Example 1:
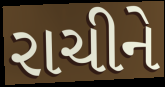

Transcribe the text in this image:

રાચીને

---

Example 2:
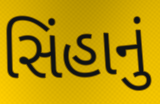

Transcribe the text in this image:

સિંહાનું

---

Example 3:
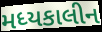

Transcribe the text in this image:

મધ્યકાલીન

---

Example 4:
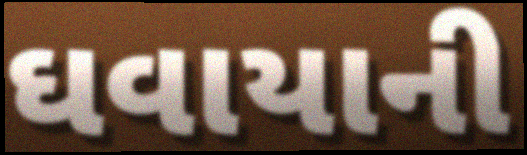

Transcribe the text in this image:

ઘવાયાની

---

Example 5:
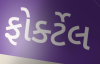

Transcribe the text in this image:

ફોર્ક્ટેલ